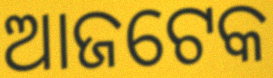
ଆଜଟେକ